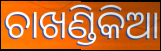
ଚାଖଣ୍ଡିକିଆ